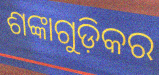
ଶଙ୍କାଗୁଡ଼ିକର